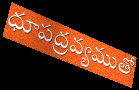
ధూపద్రవ్యముతో